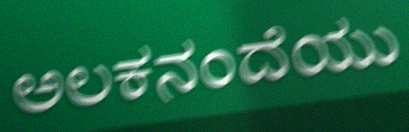
ಅಲಕನಂದೆಯು